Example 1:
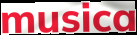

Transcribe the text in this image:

musica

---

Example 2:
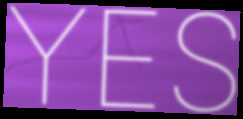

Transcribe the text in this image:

YES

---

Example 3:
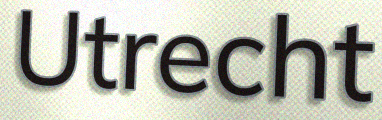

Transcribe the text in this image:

Utrecht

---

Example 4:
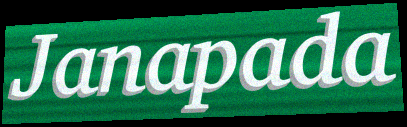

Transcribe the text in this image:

Janapada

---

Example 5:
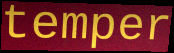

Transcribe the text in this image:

temper